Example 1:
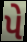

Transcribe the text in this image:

પે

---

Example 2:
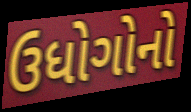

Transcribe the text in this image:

ઉધોગોનો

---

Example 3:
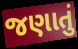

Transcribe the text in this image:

જણાતું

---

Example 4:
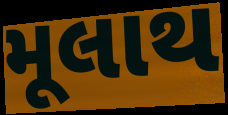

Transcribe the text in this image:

મૂલાથ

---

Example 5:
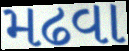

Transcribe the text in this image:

મઢવા